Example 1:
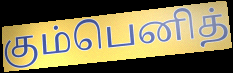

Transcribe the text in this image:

கும்பெனித்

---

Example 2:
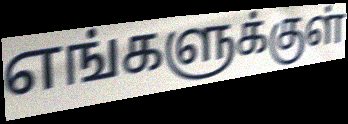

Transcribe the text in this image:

எங்களுக்குள்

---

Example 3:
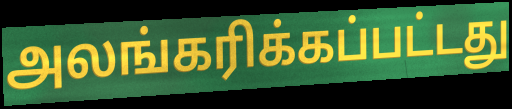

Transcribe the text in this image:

அலங்கரிக்கப்பட்டது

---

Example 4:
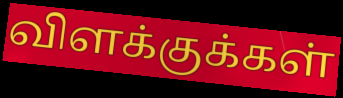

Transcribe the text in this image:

விளக்குக்கள்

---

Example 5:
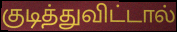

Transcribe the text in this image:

குடித்துவிட்டால்